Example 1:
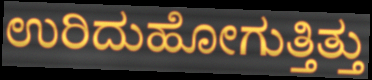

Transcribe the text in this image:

ಉರಿದುಹೋಗುತ್ತಿತ್ತು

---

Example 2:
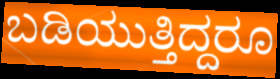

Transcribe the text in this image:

ಬಡಿಯುತ್ತಿದ್ದರೂ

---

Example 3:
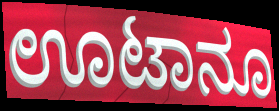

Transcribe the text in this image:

ಊಟಾನೂ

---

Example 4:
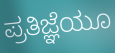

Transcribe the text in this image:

ಪ್ರತಿಜ್ಞೆಯೂ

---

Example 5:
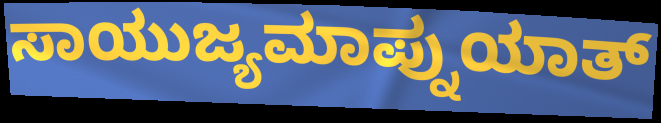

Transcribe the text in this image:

ಸಾಯುಜ್ಯಮಾಪ್ನುಯಾತ್